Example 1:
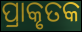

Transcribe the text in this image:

ପ୍ରାକୃତକ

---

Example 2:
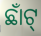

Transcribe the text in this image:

ଛାଁଟ୍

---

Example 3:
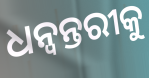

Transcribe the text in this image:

ଧନ୍ବନ୍ତରୀକୁ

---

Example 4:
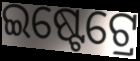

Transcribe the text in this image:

ଇଷ୍ଟେଟ୍ରେ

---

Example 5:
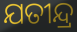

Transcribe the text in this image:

ଯତୀନ୍ଦ୍ର